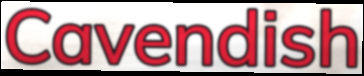
Cavendish